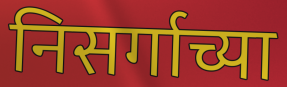
निसर्गाच्या